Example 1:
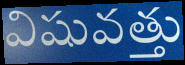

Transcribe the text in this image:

విషువత్తు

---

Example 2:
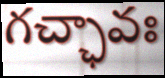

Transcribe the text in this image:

గచ్ఛావః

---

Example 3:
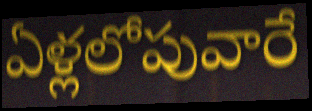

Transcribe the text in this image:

ఏళ్లలోపువారే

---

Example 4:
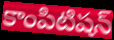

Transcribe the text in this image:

కాంపిటిషన్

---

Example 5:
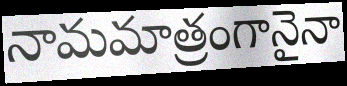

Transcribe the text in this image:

నామమాత్రంగానైనా